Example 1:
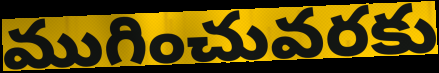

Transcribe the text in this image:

ముగించువరకు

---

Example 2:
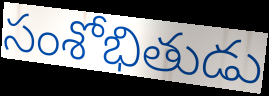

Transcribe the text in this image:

సంశోభితుడు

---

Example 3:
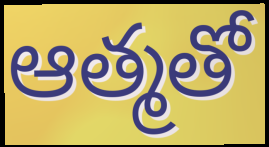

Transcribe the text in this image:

ఆత్మతో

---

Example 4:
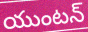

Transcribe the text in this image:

యుంటన్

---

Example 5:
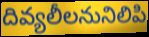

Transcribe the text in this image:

దివ్యలీలనునిలిపి